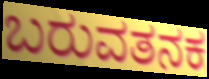
ಬರುವತನಕ